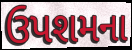
ઉપશમના